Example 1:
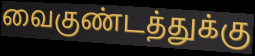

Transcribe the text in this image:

வைகுண்டத்துக்கு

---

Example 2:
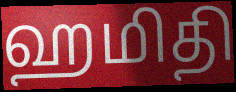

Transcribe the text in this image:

ஹமிதி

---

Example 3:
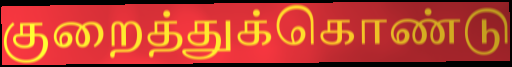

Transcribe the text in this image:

குறைத்துக்கொண்டு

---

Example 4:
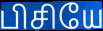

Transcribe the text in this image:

பிசியே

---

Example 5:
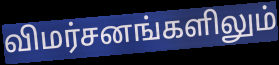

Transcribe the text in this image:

விமர்சனங்களிலும்